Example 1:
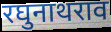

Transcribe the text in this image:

रघुनाथराव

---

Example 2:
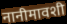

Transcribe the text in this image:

नानीमावशी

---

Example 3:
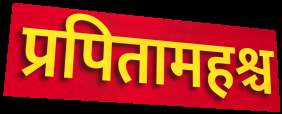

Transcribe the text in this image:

प्रपितामहश्च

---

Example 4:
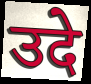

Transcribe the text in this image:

उदे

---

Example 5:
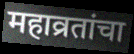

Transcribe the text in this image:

महाव्रतांचा